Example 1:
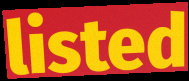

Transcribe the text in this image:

listed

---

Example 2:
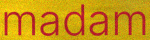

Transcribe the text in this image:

madam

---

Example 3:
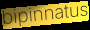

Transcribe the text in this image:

bipinnatus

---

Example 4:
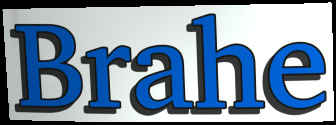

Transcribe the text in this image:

Brahe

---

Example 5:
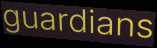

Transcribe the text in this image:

guardians